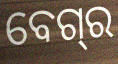
ବେଗ୍‌ର